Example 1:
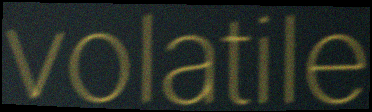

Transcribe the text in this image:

volatile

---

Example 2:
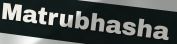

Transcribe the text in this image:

Matrubhasha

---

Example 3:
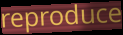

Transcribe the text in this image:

reproduce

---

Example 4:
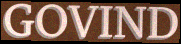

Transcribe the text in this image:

GOVIND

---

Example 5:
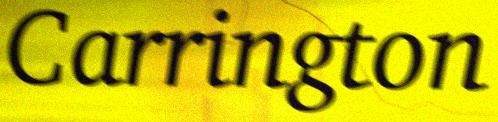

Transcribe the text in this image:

Carrington